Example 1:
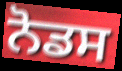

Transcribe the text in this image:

ਨੋਡਸ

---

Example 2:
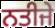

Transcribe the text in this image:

ਨਤੀਜੇ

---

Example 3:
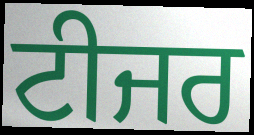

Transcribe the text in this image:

ਟੀਜਰ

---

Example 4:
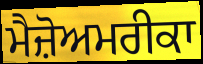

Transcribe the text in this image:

ਮੈਜ਼ੋਅਮਰੀਕਾ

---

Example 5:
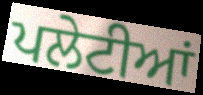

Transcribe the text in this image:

ਪਲੇਟੀਆਂ